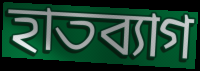
হাতব্যাগ